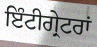
ਇੰਟੀਗ੍ਰੇਟਰਾਂ